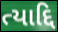
ત્યાદ્દિ